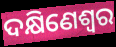
ଦକ୍ଷିଣେଶ୍ୱର